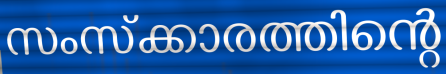
സംസ്‌ക്കാരത്തിന്റെ